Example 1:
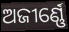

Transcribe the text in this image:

ଅଜୀର୍ଣ୍ଣେ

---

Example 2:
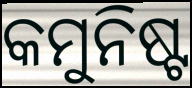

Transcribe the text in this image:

କମୁନିଷ୍ଟ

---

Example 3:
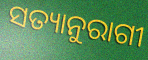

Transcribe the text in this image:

ସତ୍ୟାନୁରାଗୀ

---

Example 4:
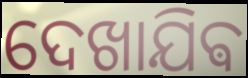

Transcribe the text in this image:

ଦେଖାଯିଵ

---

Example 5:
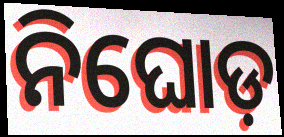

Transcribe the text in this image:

ନିଘୋଡ଼